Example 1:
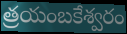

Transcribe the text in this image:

త్రయంబకేశ్వరం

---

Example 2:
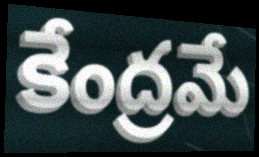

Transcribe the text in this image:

కేంద్రమే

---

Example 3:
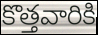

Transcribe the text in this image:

కొత్తవారికి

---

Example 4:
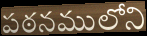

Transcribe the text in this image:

పఠనములోని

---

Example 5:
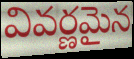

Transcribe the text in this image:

వివర్ణమైన